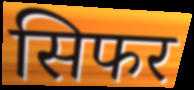
सिफर